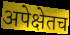
अपेक्षेतच